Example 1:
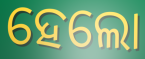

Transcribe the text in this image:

ହେଲୋ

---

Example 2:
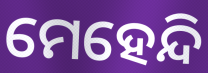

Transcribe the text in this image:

ମେହେନ୍ଦି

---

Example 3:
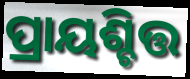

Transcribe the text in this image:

ପ୍ରାୟଶ୍ଚିତ୍ତ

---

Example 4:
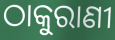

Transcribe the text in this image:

ଠାକୁରାଣୀ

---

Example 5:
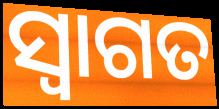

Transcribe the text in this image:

ସ୍ବାଗତ